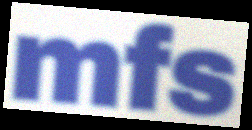
mfs